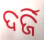
ଦର୍ଜି